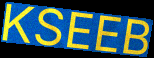
KSEEB